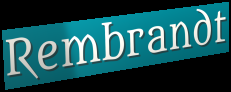
Rembrandt